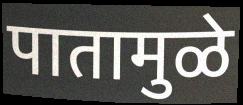
पातामुळे